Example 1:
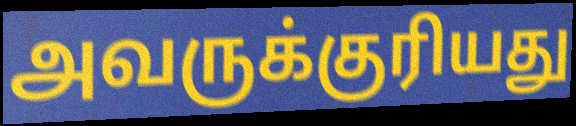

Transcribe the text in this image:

அவருக்குரியது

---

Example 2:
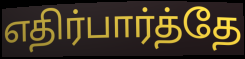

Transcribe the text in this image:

எதிர்பார்த்தே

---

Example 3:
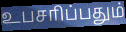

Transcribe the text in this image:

உபசரிப்பதும்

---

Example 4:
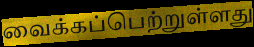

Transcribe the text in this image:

வைக்கப்பெற்றுள்ளது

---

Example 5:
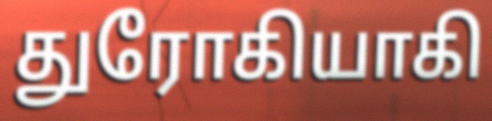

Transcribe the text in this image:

துரோகியாகி